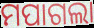
ମପାଗଲା